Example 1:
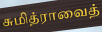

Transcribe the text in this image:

சுமித்ராவைத்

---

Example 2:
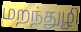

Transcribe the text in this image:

மறந்துழி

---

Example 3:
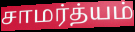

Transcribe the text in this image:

சாமர்த்யம்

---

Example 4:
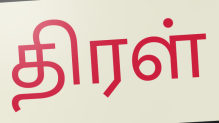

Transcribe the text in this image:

திரள்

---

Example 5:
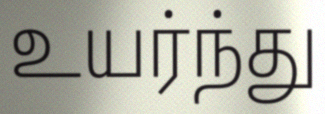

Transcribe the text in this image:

உயர்ந்து